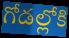
గోడల్లోకి